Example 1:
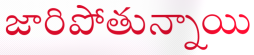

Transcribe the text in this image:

జారిపోతున్నాయి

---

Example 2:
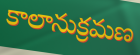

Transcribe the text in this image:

కాలానుక్రమణ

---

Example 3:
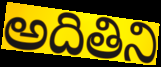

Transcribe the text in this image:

అదితిని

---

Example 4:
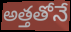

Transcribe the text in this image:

అత్తతోనే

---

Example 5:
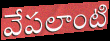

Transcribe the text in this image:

వేపలాంటి